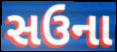
સઉના